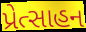
પ્રેત્સાહન